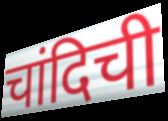
चांदिची